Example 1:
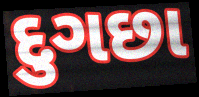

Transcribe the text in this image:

દુગછા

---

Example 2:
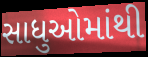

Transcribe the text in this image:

સાધુઓમાંથી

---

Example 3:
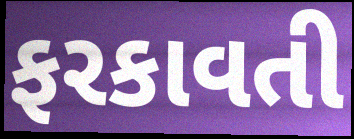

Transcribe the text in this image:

ફરકાવતી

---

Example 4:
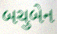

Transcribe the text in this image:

બચુબેન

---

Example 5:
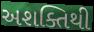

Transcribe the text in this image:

અશક્તિથી